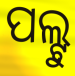
ପଲ୍ଟୁ